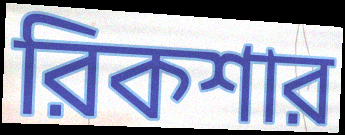
রিকশার